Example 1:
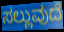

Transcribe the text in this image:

ಸಲ್ಲುವುದೆ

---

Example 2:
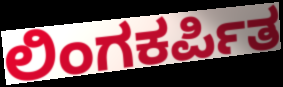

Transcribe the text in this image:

ಲಿಂಗಕರ್ಪಿತ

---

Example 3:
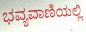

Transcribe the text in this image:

ಭವ್ಯವಾಣಿಯಲ್ಲಿ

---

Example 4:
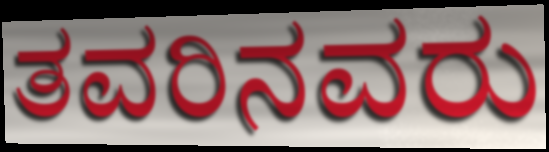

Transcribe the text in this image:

ತವರಿನವರು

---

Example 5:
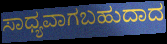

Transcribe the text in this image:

ಸಾಧ್ಯವಾಗಬಹುದಾದ